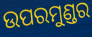
ଉପରମୁଣ୍ଡର